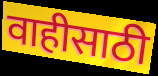
वाहीसाठी